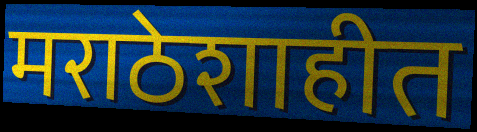
मराठेशाहीत